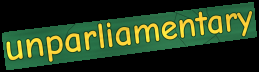
unparliamentary